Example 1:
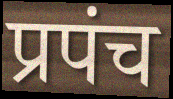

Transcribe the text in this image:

प्रपंच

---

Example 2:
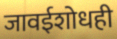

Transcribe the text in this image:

जावईशोधही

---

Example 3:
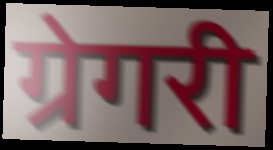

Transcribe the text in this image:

ग्रेगरी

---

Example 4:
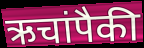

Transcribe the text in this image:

ऋचांपैकी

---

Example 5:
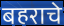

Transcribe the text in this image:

बहराचे